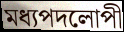
মধ্যপদলোপী